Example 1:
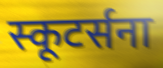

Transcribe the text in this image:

स्कूटर्सना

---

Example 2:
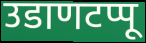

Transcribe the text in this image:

उडाणटप्पू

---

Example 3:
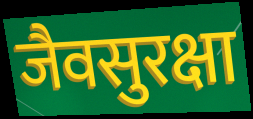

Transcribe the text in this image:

जैवसुरक्षा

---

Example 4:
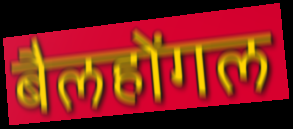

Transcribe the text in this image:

बैलहोंगल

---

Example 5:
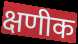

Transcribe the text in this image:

क्षणीक